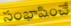
సంభాషించే